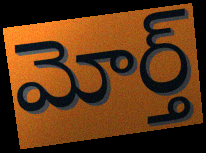
మోర్త్